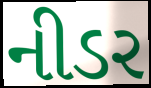
નીડર